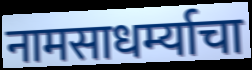
नामसाधर्म्याचा